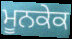
ਮੂਨਕੇਕ